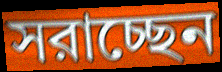
সরাচ্ছেন